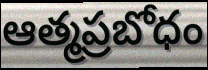
ఆత్మప్రబోధం